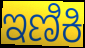
ಇಣಿಕಿ